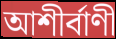
আশীর্বাণী